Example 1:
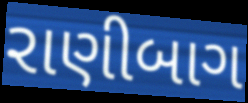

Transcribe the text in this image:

રાણીબાગ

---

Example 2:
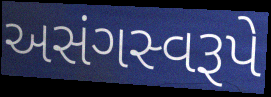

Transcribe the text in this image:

અસંગસ્વરૂપે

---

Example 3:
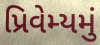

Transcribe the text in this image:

પ્રિવેમ્યમું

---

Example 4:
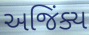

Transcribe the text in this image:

અજિંક્ય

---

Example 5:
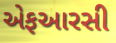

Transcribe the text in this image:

એફઆરસી